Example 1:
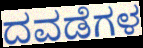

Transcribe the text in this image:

ದವಡೆಗಳ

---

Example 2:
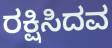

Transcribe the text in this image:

ರಕ್ಷಿಸಿದವ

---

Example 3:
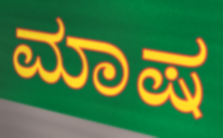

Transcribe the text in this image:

ಮಾಷ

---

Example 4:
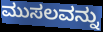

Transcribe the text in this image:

ಮುಸಲವನ್ನು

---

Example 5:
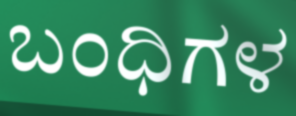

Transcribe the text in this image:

ಬಂಧಿಗಳ